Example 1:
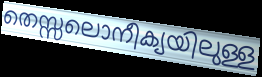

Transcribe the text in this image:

തെസ്സലൊനീക്യയിലുള്ള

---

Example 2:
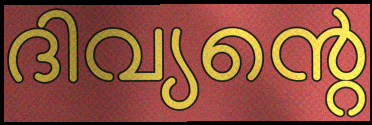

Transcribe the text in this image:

ദിവ്യന്റെ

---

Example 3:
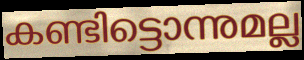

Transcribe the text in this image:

കണ്ടിട്ടൊന്നുമല്ല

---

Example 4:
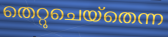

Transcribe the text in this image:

തെറ്റുചെയ്‌തെന്ന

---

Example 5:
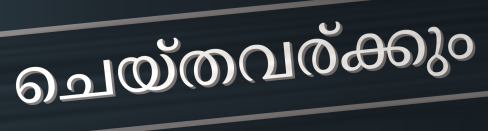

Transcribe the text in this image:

ചെയ്തവര്ക്കും